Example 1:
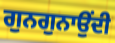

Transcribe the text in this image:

ਗੁਨਗੁਨਾਉਂਦੀ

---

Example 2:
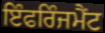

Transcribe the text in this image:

ਇੰਫਰਿੰਜਮੈਂਟ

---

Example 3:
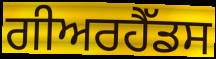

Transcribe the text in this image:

ਗੀਅਰਹੈੱਡਸ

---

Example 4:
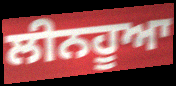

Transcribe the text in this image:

ਲੀਨਹੂਆ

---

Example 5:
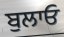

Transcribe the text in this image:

ਬੁਲਾਓ